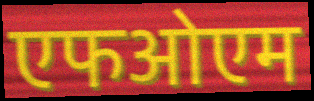
एफओएम